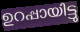
ഉറപ്പായിട്ടു